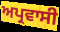
ਅਪ੍ਰਵਾਸੀ